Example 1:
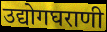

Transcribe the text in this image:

उद्योगघराणी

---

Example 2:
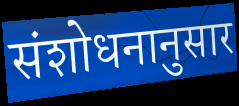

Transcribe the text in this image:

संशोधनानुसार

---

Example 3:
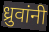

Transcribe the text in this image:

ध्रुवांनी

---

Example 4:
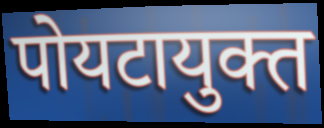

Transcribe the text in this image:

पोयटायुक्त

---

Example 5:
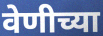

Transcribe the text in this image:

वेणीच्या